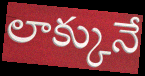
లాక్కునే